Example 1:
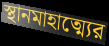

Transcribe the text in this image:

স্থানমাহাত্ম্যের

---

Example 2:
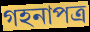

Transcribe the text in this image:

গহনাপত্র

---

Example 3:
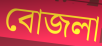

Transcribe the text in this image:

বোজলা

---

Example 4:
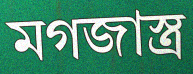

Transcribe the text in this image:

মগজাস্ত্র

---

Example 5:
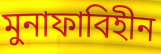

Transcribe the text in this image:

মুনাফাবিহীন